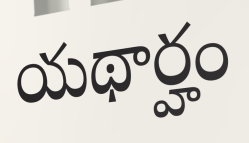
యథార్హం